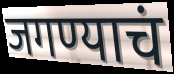
जगण्याचं